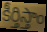
కీర్తిస్తాం